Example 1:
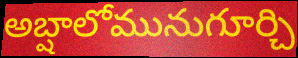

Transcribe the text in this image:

అబ్షాలోమునుగూర్చి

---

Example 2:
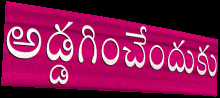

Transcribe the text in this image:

అడ్డగించేందుకు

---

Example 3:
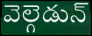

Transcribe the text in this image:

వెల్గెడున్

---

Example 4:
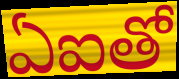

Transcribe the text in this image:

ఏఐతో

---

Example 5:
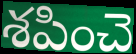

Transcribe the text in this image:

శపించె